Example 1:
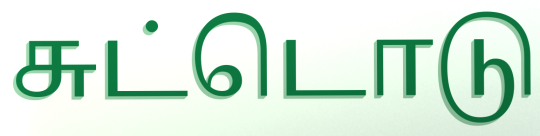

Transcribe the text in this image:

சுட்டொடு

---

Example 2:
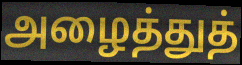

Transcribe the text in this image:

அழைத்துத்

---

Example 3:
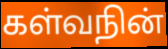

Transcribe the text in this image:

கள்வநின்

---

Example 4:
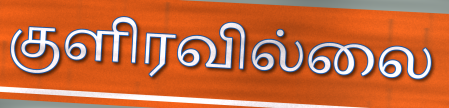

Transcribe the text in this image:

குளிரவில்லை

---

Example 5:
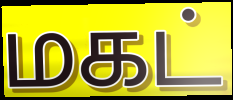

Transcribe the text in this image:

மகட்